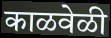
काळवेळी